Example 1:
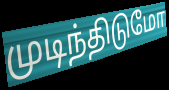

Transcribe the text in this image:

முடிந்திடுமோ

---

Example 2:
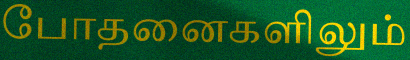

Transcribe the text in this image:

போதனைகளிலும்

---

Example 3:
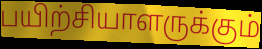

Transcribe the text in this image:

பயிற்சியாளருக்கும்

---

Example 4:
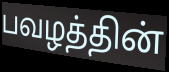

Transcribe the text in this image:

பவழத்தின்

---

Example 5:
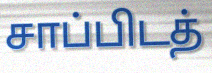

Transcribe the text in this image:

சாப்பிடத்